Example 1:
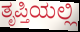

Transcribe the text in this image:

ತೃಪ್ತಿಯಲ್ಲಿ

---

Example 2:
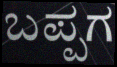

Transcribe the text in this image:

ಬಪ್ಪಗ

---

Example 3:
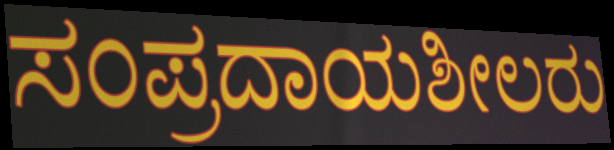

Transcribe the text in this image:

ಸಂಪ್ರದಾಯಶೀಲರು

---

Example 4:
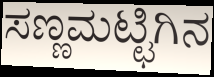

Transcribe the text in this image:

ಸಣ್ಣಮಟ್ಟಿಗಿನ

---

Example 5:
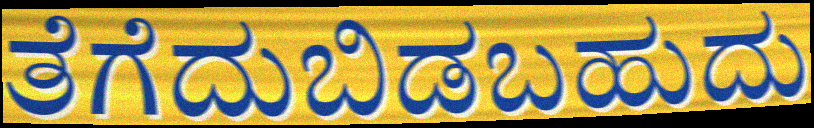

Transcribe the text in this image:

ತೆಗೆದುಬಿಡಬಹುದು